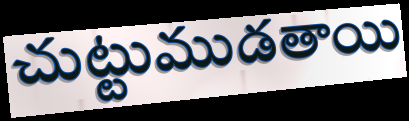
చుట్టుముడతాయి